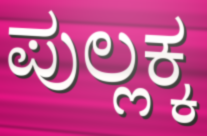
ಪುಲ್ಲಕ್ಕ